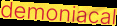
demoniacal